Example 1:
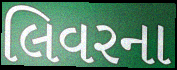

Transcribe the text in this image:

લિવરના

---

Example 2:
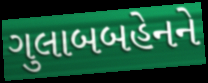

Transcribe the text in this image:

ગુલાબબહેનને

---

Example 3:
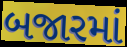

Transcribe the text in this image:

બજારમાં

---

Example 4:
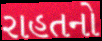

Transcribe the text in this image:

રાહતનો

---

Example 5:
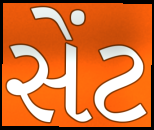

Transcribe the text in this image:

સેંટ